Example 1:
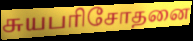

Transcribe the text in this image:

சுயபரிசோதனை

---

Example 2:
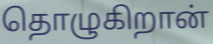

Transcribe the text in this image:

தொழுகிறான்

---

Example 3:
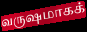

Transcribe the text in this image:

வருஷமாகக்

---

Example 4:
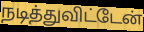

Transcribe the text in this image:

நடித்துவிட்டேன்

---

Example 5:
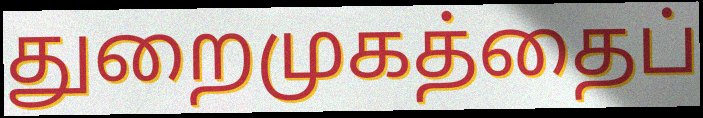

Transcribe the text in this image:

துறைமுகத்தைப்